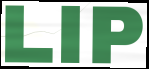
LIP